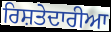
ਰਿਸ਼ਤੇਦਾਰੀਆ